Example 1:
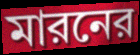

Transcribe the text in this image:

মারনের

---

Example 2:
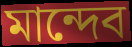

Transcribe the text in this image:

মান্দেব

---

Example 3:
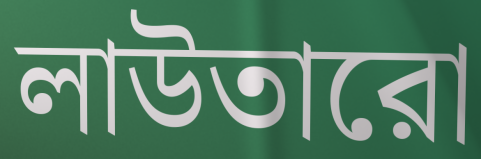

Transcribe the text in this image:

লাউতারো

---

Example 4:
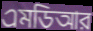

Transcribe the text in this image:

এমডিআর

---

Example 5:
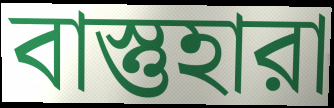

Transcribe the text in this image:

বাস্তুহারা